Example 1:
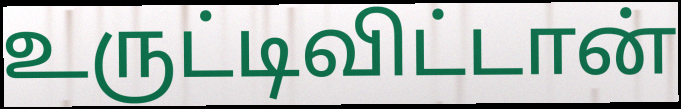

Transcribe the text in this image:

உருட்டிவிட்டான்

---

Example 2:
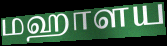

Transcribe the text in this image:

மஹாளய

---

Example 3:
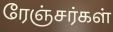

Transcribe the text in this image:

ரேஞ்சர்கள்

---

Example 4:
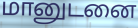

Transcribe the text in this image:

மானுடனை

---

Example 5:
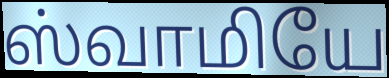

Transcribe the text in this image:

ஸ்வாமியே